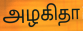
அழகிதா